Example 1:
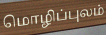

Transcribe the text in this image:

மொழிப்புலம்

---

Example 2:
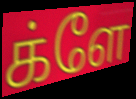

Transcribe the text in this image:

க்ளே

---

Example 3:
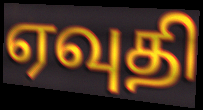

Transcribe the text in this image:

ஏவுதி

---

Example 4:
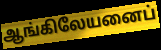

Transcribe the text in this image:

ஆங்கிலேயனைப்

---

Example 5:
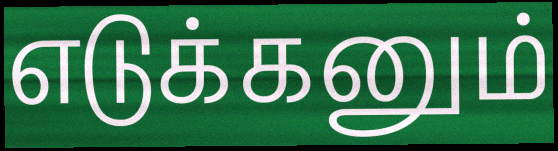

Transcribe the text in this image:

எடுக்கனும்